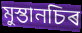
মুস্তানচিৰ